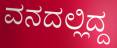
ವನದಲ್ಲಿದ್ದ